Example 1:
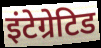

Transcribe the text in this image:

इंटेग्रेटिड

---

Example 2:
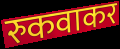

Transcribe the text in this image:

रुकवाकर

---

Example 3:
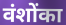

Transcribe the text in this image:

वंशोंका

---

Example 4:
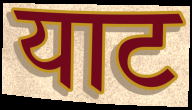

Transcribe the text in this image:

याट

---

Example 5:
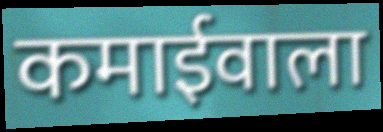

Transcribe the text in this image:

कमाईवाला